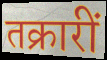
तक्रारीं